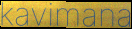
kavimana